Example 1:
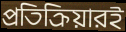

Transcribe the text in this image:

প্রতিক্রিয়ারই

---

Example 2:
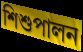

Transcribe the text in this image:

শিশুপালন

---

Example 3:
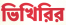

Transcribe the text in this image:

ভিখিরির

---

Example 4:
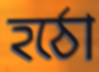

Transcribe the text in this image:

হঠো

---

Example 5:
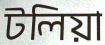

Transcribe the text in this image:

টলিয়া